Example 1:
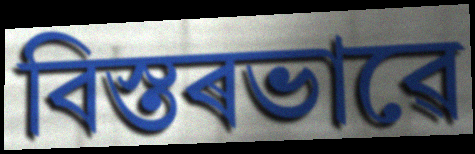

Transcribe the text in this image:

বিস্তৰভাৱে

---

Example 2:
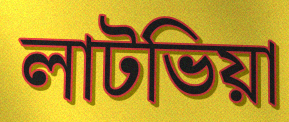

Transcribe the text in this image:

লাটভিয়া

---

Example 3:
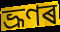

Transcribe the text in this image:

ভ্ৰূণৰ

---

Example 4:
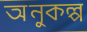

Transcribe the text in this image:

অনুকল্প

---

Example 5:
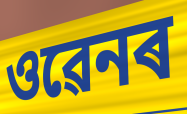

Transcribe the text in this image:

ওৱেনৰ